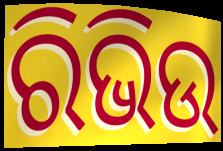
ରିଭିଉ